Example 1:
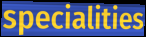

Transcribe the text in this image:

specialities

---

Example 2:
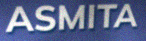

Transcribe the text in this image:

ASMITA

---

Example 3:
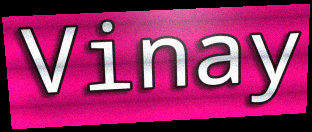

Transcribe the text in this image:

Vinay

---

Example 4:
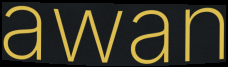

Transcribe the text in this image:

awan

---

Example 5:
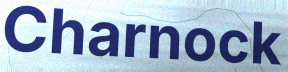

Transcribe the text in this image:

Charnock